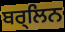
ਬਰ੍ਲਿਨ